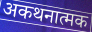
अकथनात्मक